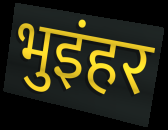
भुइंहर